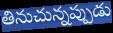
తినుచున్నప్పుడు